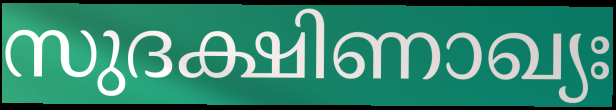
സുദക്ഷിണാഖ്യഃ